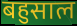
बहुसाल